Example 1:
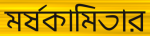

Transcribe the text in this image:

মর্ষকামিতার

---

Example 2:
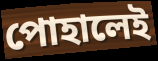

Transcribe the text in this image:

পোহালেই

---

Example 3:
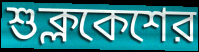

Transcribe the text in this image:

শুক্লকেশের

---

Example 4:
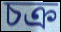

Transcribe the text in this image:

চক্র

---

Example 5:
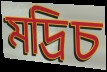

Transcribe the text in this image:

মদ্রিচ